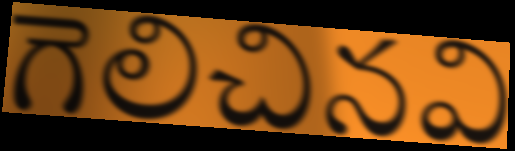
గెలిచినవి